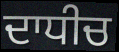
ਦਾਧੀਚ